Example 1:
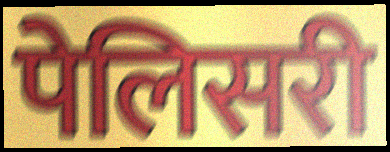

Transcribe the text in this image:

पेलिसरी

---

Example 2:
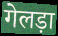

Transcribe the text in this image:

गेलड़ा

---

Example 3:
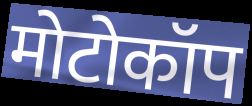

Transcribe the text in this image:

मोटोकॉप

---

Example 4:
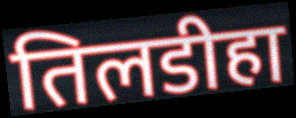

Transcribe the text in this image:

तिलडीहा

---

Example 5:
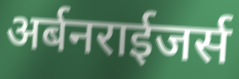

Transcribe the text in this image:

अर्बनराईजर्स